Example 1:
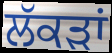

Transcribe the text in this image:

ਲੱਕੜਾਂ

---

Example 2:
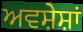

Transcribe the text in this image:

ਅਵਸ਼ੇਸ਼ਾਂ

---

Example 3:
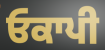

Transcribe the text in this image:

ਓਕਾਪੀ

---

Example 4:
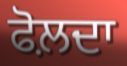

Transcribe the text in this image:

ਫੋਲ਼ਦਾ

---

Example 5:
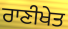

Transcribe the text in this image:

ਰਾਣੀਖੇਤ